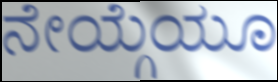
ನೇಯ್ಗೆಯೂ